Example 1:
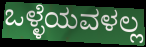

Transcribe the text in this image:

ಒಳ್ಳೆಯವಳಲ್ಲ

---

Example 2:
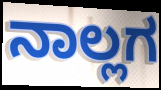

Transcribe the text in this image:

ನಾಲ್ಲಗ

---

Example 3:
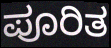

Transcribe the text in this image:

ಪೂರಿತ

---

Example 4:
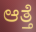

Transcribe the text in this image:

ಆತ್ತೆ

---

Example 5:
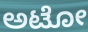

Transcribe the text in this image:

ಅಟೋ